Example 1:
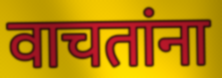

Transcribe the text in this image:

वाचतांना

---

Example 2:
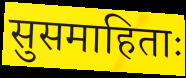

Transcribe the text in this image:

सुसमाहिताः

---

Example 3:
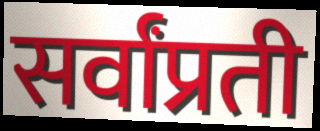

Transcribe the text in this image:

सर्वांप्रती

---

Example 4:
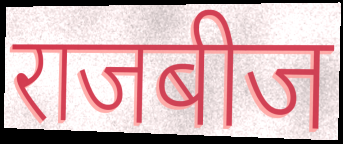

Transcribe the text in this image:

राजबीज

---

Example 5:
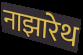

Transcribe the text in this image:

नाझारेथ